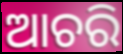
ଆଚରି